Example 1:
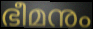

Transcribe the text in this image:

ഭീമനും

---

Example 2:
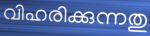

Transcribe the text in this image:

വിഹരിക്കുന്നതു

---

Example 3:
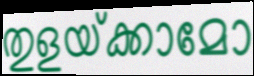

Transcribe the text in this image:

തുളയ്‌ക്കാമോ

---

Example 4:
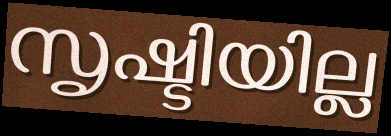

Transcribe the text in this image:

സൃഷ്ടിയില്ല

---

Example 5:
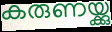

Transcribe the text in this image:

കരുണയ്ക്കു